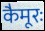
कैमूरः